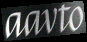
aavto